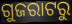
ଗୁଜରାଟରୁ